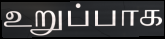
உறுப்பாக